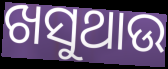
ଖସୁଥାଉ